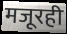
मजूरही